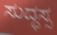
ಸುದ್ಧಸ್ಸ